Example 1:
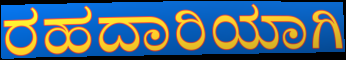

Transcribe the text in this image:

ರಹದಾರಿಯಾಗಿ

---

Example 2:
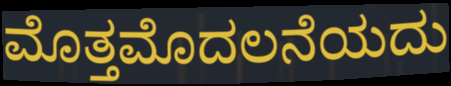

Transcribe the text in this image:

ಮೊತ್ತಮೊದಲನೆಯದು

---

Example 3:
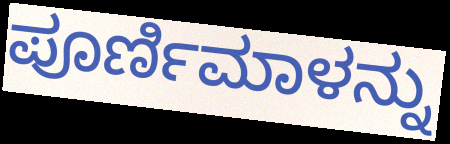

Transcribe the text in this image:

ಪೂರ್ಣಿಮಾಳನ್ನು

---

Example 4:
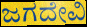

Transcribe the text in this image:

ಜಗದೇವಿ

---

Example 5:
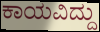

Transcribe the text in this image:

ಕಾಯವಿದ್ದು